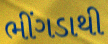
ભીંગડાથી